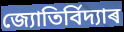
জ্যোতিৰ্বিদ্যাৰ